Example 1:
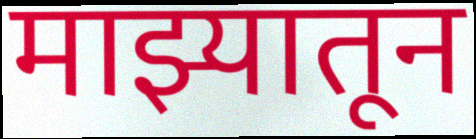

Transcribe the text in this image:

माझ्यातून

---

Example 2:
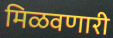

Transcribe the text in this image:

मिळवणारी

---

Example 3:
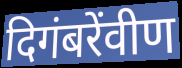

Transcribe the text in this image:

दिगंबरेंवीण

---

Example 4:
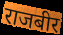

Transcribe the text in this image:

राजबीर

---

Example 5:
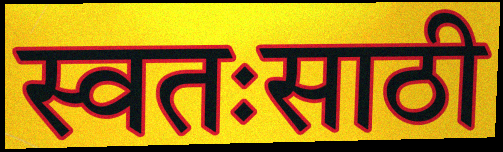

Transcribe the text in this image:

स्वतःसाठी